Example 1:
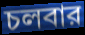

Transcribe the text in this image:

চলবার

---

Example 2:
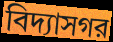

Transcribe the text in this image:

বিদ্যাসগর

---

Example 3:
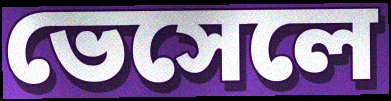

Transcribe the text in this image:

ভেসেলে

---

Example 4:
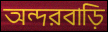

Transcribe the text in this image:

অন্দরবাড়ি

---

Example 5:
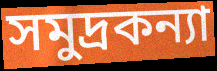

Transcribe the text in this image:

সমুদ্রকন্যা